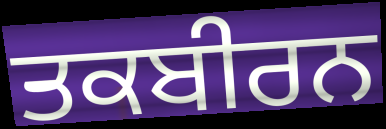
ਤਕਬੀਰਨ